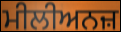
ਮੀਲੀਅਨਜ਼